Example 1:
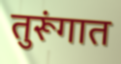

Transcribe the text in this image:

तुरूंगात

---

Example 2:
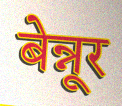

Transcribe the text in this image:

बेन्नूर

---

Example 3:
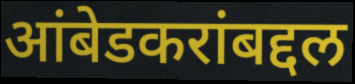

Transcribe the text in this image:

आंबेडकरांबद्दल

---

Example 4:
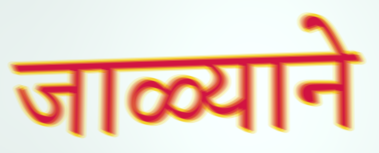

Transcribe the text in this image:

जाळ्याने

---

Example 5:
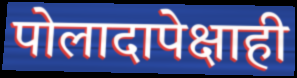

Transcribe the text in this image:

पोलादापेक्षाही